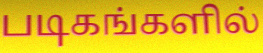
படிகங்களில்